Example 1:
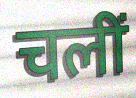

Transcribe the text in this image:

चलीं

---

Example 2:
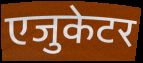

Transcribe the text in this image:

एजुकेटर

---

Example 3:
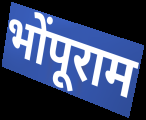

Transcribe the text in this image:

भोंपूराम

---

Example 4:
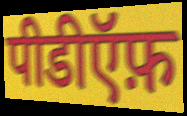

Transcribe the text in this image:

पीडीऍफ़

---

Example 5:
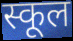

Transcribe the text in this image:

स्कूल